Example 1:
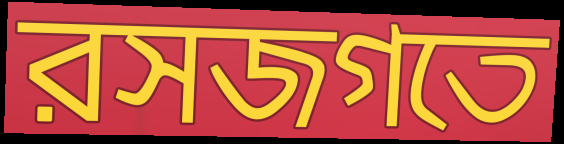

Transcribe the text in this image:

রসজগতে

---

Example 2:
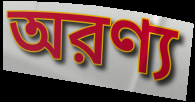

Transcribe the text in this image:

অরণ্য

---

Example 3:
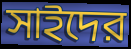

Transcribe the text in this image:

সাইদের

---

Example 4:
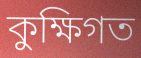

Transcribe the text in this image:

কুক্ষিগত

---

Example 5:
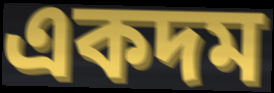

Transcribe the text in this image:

একদম